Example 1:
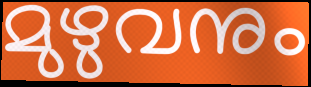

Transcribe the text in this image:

മുഴുവനും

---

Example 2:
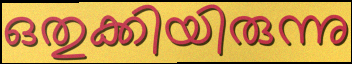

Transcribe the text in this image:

ഒതുക്കിയിരുന്നു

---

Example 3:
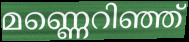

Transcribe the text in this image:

മണ്ണെറിഞ്ഞ്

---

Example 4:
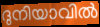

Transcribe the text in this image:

ദുനിയാവിൽ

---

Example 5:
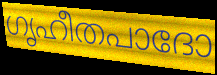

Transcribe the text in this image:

ഗൃഹീതപാദോ